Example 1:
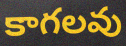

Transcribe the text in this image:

కాగలవు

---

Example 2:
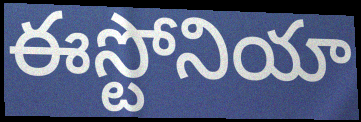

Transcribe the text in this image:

ఈస్టోనియా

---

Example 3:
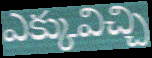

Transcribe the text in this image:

ఎక్కువిచ్చి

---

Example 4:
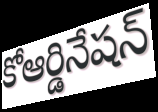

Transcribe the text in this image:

కోఆర్డినేషన్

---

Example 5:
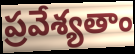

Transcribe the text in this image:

ప్రవేశ్యతాం